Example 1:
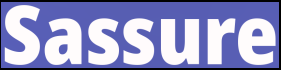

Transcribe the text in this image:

Sassure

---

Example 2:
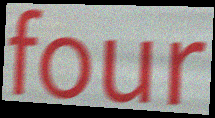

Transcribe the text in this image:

four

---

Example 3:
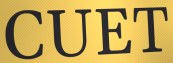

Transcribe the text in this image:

CUET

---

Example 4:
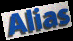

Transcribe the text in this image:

Alias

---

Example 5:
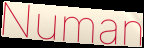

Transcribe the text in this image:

Numan